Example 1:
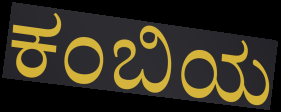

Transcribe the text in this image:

ಕಂಬಿಯ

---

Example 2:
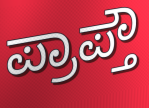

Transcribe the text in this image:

ಪ್ರಾಪ್ತೌ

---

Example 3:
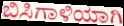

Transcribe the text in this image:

ಬಿಸಿಗಾಳಿಯಾಗಿ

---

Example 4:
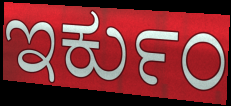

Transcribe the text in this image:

ಇರ್ಕುಂ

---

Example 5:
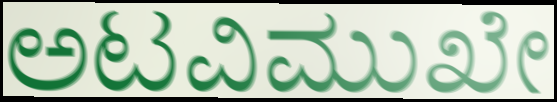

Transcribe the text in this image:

ಅಟವಿಮುಖೇ